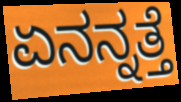
ಏನನ್ನತ್ತೆ